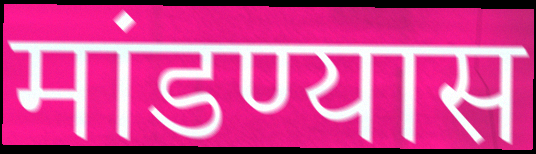
मांडण्यास